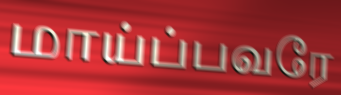
மாய்ப்பவரே